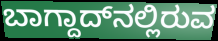
ಬಾಗ್ದಾದ್‌ನಲ್ಲಿರುವ